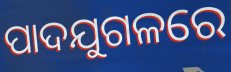
ପାଦଯୁଗଳରେ